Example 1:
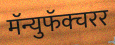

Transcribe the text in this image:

मॅन्युफॅक्चरर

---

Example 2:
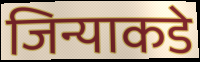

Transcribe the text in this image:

जिन्याकडे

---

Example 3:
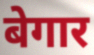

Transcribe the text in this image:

बेगार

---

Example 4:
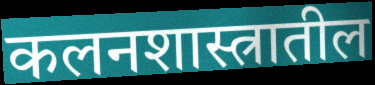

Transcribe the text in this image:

कलनशास्त्रातील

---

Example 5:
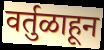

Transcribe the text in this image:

वर्तुळाहून